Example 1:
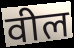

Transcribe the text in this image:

वील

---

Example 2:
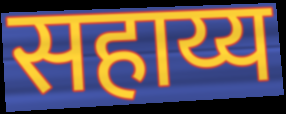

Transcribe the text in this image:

सहाय्य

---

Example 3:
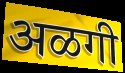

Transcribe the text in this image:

अळगी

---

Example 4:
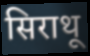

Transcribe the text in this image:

सिराथू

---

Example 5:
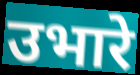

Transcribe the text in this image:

उभारे